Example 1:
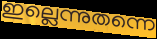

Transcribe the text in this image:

ഇല്ലെന്നുതന്നെ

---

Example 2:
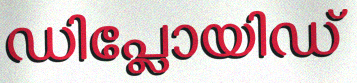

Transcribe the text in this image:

ഡിപ്ലോയിഡ്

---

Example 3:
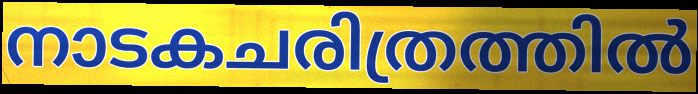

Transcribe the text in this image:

നാടകചരിത്രത്തിൽ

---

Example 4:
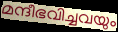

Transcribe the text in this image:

മന്ദീഭവിച്ചവയും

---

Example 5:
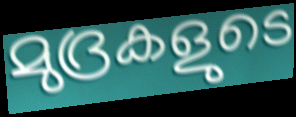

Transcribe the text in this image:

മുദ്രകളുടെ